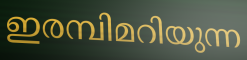
ഇരമ്പിമറിയുന്ന